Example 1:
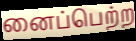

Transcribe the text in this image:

னைப்பெற்ற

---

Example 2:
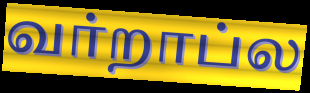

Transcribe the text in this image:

வர்றாப்ல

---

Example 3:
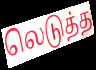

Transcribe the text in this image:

லெடுத்த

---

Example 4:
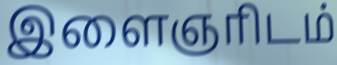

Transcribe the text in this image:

இளைஞரிடம்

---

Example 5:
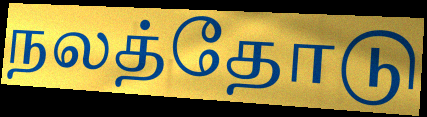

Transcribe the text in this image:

நலத்தோடு